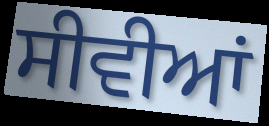
ਸੀਵੀਆਂ